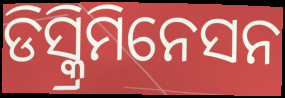
ଡିସ୍କ୍ରିମିନେସନ